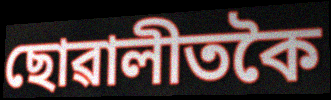
ছোৱালীতকৈ